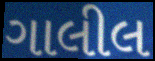
ગાલીલ